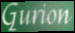
Gurion